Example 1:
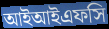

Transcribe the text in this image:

আইআইএফসি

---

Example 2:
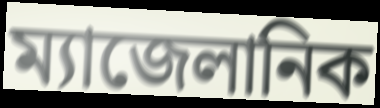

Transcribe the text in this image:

ম্যাজেলানিক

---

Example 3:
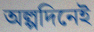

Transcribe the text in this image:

অল্পদিনেই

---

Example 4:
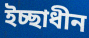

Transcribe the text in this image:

ইচ্ছাধীন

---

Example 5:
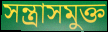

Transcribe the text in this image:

সন্ত্রাসমুক্ত